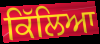
ਕਿੱਲਿਆ